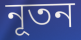
নূতন